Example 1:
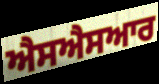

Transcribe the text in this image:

ਐਸਐਸਆਰ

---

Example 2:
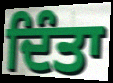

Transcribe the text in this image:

ਦਿੰਤਾ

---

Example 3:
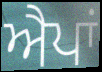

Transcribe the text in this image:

ਐਪਾਂ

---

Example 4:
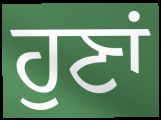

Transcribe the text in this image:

ਹੁਣਾਂ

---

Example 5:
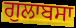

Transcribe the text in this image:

ਗੁਲਾਬਸਾ